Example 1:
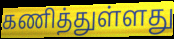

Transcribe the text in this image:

கணித்துள்ளது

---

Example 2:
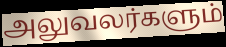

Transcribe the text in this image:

அலுவலர்களும்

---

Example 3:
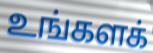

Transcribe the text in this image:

உங்களக்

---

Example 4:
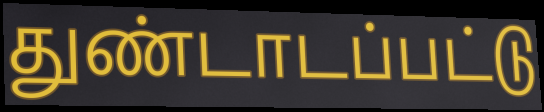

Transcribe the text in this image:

துண்டாடப்பட்டு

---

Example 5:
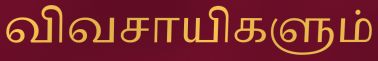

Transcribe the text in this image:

விவசாயிகளும்